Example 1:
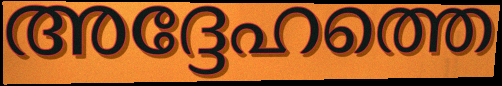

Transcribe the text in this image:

അദ്ദേഹത്തെ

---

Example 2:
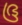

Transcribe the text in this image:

ഭൂ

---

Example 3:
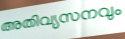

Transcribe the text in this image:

അതിവ്യസനവും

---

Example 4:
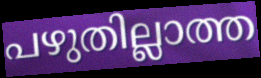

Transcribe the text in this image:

പഴുതില്ലാത്ത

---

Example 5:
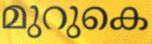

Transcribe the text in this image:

മുറുകെ